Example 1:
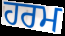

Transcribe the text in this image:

ਹਰਮ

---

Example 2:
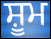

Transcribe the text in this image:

ਸ਼ੂਮ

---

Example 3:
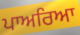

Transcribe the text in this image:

ਪਾਅਰਿਆ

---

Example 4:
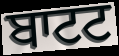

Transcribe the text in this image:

ਬਾਟਟ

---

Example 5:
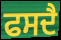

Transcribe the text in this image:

ਫਸਦੈ